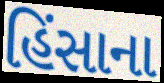
હિંસાના